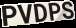
PVDPS